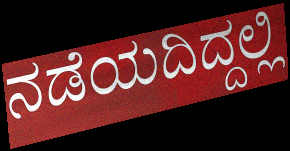
ನಡೆಯದಿದ್ದಲ್ಲಿ